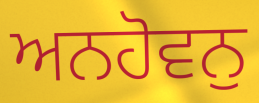
ਅਨਹੋਵਨੁ